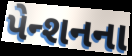
પેન્શનના